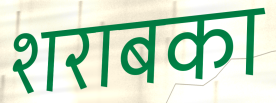
शराबका